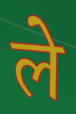
ले